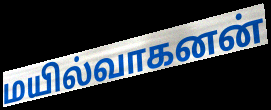
மயில்வாகனன்